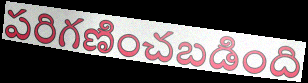
పరిగణించబడింది